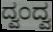
ದ್ವಂದ್ವ